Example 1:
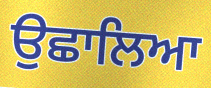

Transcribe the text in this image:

ਉਛਾਲਿਆ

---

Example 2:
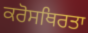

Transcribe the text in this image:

ਕਰੋਸਥਿਰਤਾ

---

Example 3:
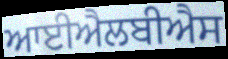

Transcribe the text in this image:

ਆਈਐਲਬੀਐਸ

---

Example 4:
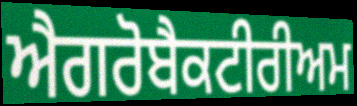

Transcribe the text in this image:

ਐਗਰੋਬੈਕਟੀਰੀਅਮ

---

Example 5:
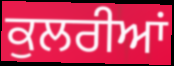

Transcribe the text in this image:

ਕੁਲਰੀਆਂ